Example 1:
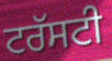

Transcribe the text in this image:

ਟਰੱਸਟੀ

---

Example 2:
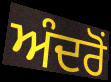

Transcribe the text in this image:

ਅੰਦਰੋਂ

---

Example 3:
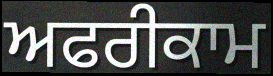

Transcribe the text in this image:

ਅਫਰੀਕਾਮ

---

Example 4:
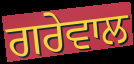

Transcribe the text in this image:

ਗਰੇਵਾਲ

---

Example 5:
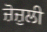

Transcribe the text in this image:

ਜ਼ੋਜ਼ੁਲੀ